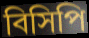
বিসিপি